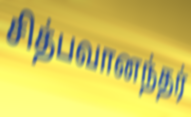
சித்பவானந்தர்